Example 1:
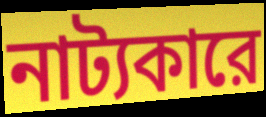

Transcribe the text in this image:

নাট্যকারে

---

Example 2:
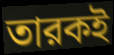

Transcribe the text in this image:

তারকই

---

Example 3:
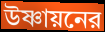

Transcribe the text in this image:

উষ্ণায়নের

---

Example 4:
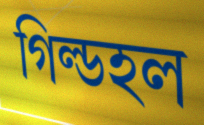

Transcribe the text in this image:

গিল্ডহল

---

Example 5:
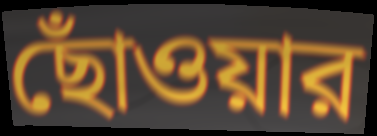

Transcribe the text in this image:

ছোঁওয়ার